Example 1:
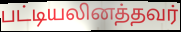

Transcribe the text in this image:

பட்டியலினத்தவர்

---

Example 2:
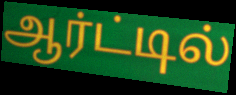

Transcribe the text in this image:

ஆர்ட்டில்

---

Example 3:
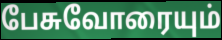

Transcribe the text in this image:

பேசுவோரையும்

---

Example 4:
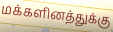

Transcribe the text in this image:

மக்களினத்துக்கு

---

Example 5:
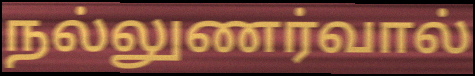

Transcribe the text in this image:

நல்லுணர்வால்